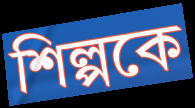
শিল্পকে